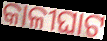
କାଳୀଘାଟ